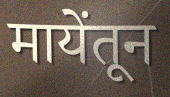
मायेंतून